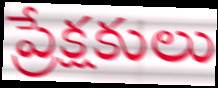
ప్రేక్షకులు